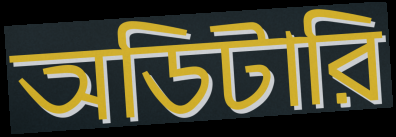
অডিটারি